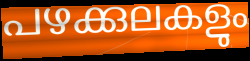
പഴക്കുലകളും